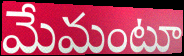
మేమంటూ